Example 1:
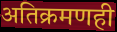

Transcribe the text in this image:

अतिक्रमणही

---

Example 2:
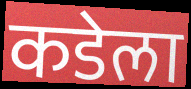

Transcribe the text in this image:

कडेला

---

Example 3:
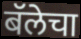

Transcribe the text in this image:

बॅलेचा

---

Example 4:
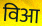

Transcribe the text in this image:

विआ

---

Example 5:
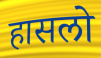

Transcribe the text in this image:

हासलो